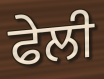
ਫੇਲੀ